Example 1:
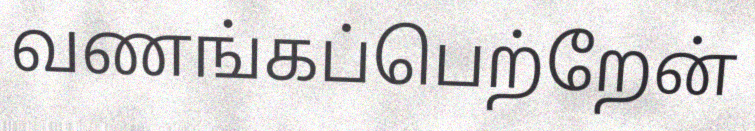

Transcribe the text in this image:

வணங்கப்பெற்றேன்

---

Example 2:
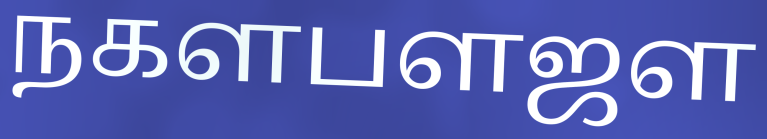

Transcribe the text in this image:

நகளபளஜள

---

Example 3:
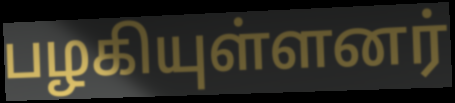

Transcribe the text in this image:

பழகியுள்ளனர்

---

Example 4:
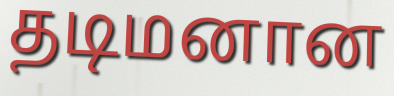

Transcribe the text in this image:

தடிமனான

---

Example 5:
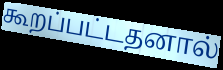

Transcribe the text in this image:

கூறப்பட்டதனால்